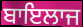
ਬਾਇਲਾਜ